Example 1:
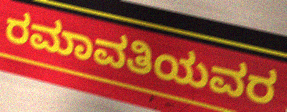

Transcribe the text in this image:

ರಮಾವತಿಯವರ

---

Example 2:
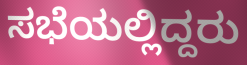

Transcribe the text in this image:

ಸಭೆಯಲ್ಲಿದ್ದರು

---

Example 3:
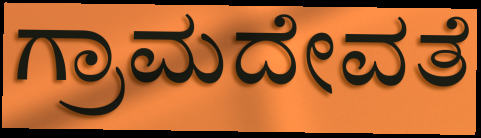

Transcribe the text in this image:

ಗ್ರಾಮದೇವತೆ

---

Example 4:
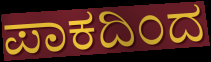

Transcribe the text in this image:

ಪಾಕದಿಂದ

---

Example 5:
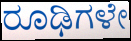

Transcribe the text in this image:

ರೂಢಿಗಳೇ